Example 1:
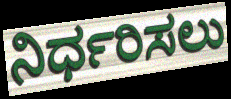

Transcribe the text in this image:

ನಿರ್ಧರಿಸಲು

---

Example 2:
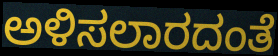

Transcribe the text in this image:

ಅಳಿಸಲಾರದಂತೆ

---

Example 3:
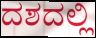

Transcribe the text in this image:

ದಶದಲ್ಲಿ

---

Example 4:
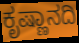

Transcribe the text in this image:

ಕೃಷ್ಣಾನದಿ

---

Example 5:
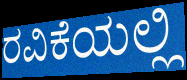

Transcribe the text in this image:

ರವಿಕೆಯಲ್ಲಿ